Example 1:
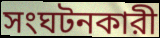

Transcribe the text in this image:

সংঘটনকারী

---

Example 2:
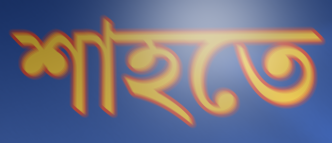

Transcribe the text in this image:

শাহতে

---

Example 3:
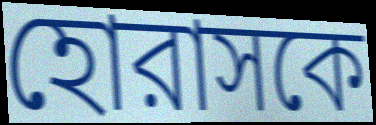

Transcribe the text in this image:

হোরাসকে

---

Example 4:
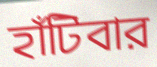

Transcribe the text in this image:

হাঁটিবার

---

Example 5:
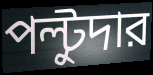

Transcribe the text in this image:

পল্টুদার